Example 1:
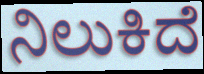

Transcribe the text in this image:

ನಿಲುಕಿದೆ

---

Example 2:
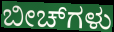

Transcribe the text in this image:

ಬೀಚ್‌ಗಳು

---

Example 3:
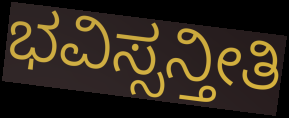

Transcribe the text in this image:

ಭವಿಸ್ಸನ್ತೀತಿ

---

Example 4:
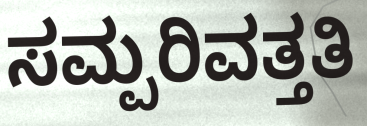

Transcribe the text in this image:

ಸಮ್ಪರಿವತ್ತತಿ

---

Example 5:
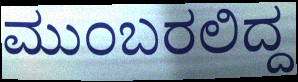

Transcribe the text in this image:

ಮುಂಬರಲಿದ್ದ